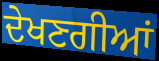
ਦੇਖਣਗੀਆਂ